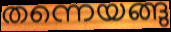
തന്നെയങ്ങു